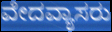
ವೇದವ್ಯಾಸರು